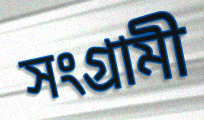
সংগ্ৰামী